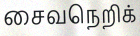
சைவநெறிக்